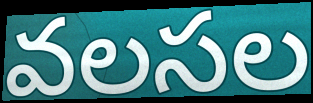
వలసల